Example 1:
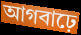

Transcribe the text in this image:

আগবাঢ়ে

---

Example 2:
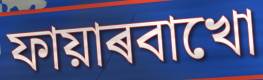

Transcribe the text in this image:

ফায়াৰবাখো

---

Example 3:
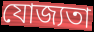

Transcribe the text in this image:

যোজ্যতা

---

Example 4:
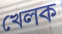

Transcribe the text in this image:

খেলক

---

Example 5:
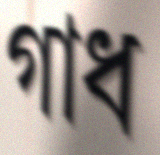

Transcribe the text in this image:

গাধ